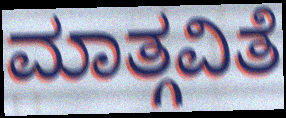
ಮಾತ್ಗವಿತೆ